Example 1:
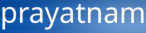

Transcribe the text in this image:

prayatnam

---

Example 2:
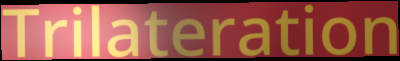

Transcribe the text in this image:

Trilateration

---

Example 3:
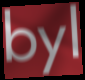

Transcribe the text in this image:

byl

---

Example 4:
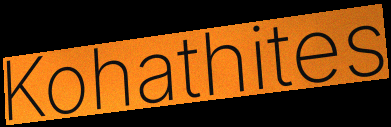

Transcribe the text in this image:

Kohathites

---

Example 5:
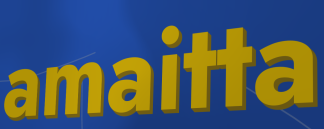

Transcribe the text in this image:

amaitta